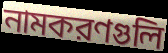
নামকরণগুলি